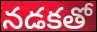
నడకతో